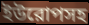
ইউরোপসহ